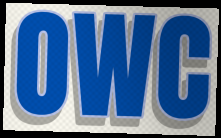
OWC